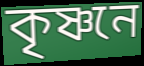
কৃষ্ণনে